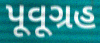
પૂવૂગ્રહ